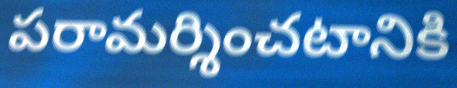
పరామర్శించటానికి